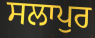
ਸਲਾਪੁਰ